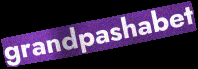
grandpashabet